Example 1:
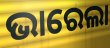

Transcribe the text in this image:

ଭାରେଲା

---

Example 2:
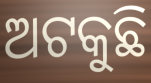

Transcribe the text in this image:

ଅଟକୁଛି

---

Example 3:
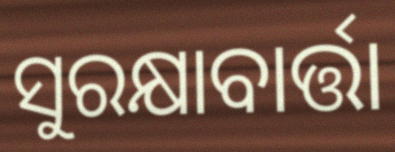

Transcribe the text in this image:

ସୁରକ୍ଷାବାର୍ତ୍ତା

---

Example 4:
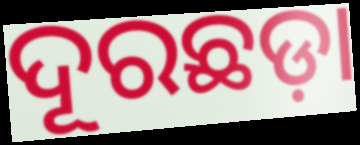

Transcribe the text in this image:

ଦୂରଛଡ଼ା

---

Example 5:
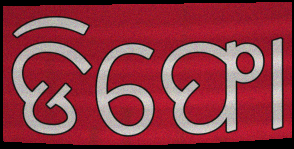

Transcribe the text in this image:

ଡିଫୋ